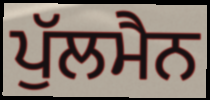
ਪੁੱਲਮੈਨ